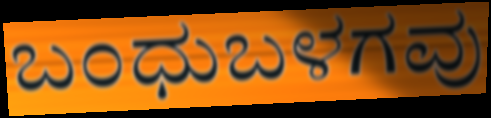
ಬಂಧುಬಳಗವು